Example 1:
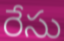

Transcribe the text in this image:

రేసు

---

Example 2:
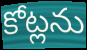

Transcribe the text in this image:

కోట్లను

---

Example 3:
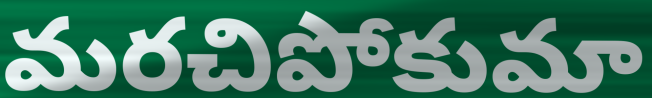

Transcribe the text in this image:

మరచిపోకుమా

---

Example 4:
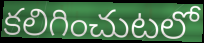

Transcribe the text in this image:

కలిగించుటలో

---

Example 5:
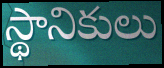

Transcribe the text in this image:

స్థానికులు